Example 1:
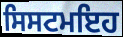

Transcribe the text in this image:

ਸਿਸਟਮਇਹ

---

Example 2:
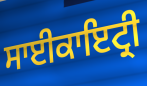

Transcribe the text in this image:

ਸਾਈਕਾਇਟ੍ਰੀ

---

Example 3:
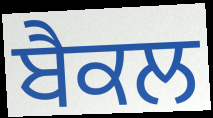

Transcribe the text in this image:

ਬੈਕਲ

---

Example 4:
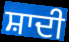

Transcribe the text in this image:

ਸ਼ਾਦੀ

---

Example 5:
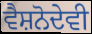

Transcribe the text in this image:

ਵੈਸ਼ਨੋਦੇਵੀ